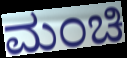
ಮಂಚಿ